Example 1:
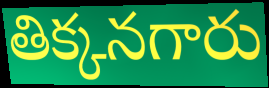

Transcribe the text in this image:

తిక్కనగారు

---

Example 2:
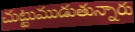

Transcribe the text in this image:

చుట్టుముడుతున్నారు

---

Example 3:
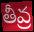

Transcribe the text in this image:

తీవ్ర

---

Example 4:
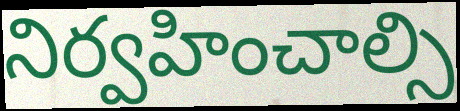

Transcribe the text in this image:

నిర్వహించాల్సి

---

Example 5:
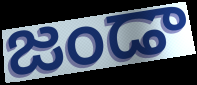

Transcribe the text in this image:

జండా